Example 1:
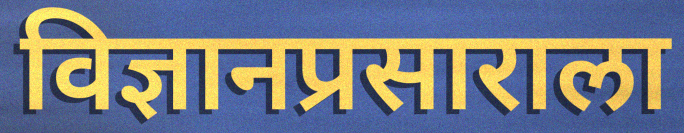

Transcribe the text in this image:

विज्ञानप्रसाराला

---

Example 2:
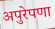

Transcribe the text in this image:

अपुरेपणा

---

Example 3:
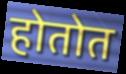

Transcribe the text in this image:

होतोत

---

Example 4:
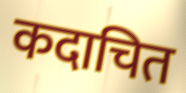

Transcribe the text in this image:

कदाचित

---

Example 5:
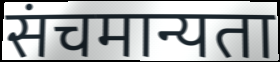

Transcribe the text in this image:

संचमान्यता